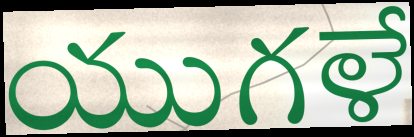
యుగళే